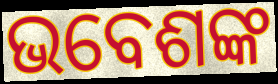
ଭବେଶଙ୍କ